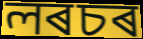
লৰচৰ